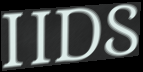
IIDS